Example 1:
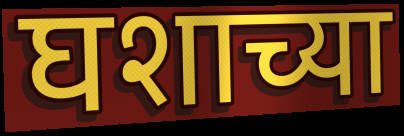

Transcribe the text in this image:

घशाच्या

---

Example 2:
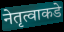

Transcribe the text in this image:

नेतृत्वाकडे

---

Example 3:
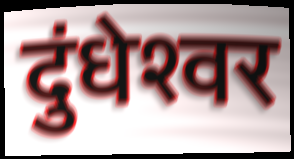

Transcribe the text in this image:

दुंधेश्वर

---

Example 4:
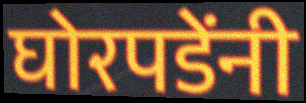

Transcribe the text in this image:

घोरपडेंनी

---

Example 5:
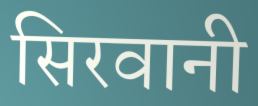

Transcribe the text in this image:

सिरवानी